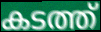
കടത്ത്